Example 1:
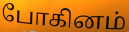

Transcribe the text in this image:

போகினம்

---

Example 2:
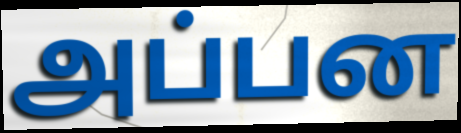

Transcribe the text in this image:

அப்பன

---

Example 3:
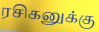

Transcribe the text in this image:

ரசிகனுக்கு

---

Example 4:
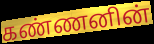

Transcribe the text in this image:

கண்ணனின்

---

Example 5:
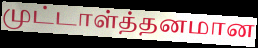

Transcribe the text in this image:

முட்டாள்த்தனமான